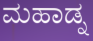
ಮಹಾಡ್ನ